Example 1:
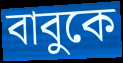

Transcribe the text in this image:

বাবুকে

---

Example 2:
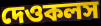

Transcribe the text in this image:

দেওকলস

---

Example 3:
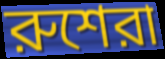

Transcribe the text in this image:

রুশেরা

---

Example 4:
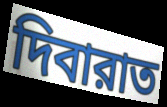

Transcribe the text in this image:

দিবারাত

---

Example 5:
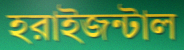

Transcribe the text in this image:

হরাইজন্টাল